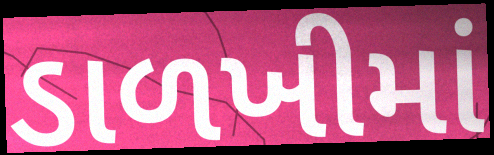
ડાળખીમાં